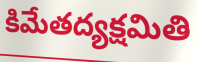
కిమేతద్యక్షమితి